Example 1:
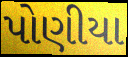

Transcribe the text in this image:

પોણીયા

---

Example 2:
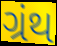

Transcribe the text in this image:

ગ્રંથ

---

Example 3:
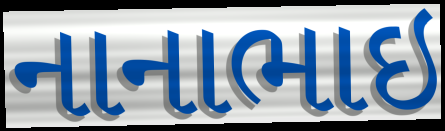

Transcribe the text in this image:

નાનાભાઇ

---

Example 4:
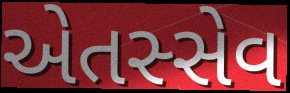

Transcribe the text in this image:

એતસ્સેવ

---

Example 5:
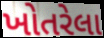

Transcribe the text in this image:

ખોતરેલા